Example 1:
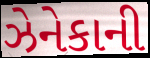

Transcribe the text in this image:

ઝેનેકાની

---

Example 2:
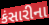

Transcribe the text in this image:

કંસારીના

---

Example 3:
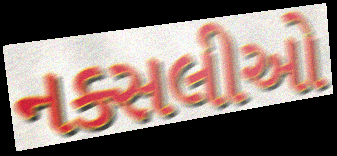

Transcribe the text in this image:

નક્સલીઓ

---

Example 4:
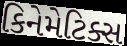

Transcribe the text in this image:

કિનેમેટિક્સ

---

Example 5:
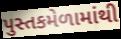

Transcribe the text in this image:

પુસ્તકમેળામાંથી